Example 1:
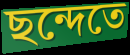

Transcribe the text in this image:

ছন্দেতে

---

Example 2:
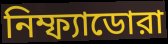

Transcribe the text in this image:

নিম্ফ্যাডোরা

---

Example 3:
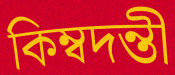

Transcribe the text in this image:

কিম্বদন্তী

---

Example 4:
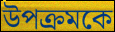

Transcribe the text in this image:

উপক্রমকে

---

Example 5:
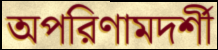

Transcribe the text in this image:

অপরিণামদর্শী